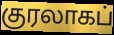
குரலாகப்